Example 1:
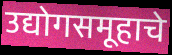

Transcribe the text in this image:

उद्योगसमूहाचे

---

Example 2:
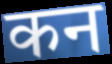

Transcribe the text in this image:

कन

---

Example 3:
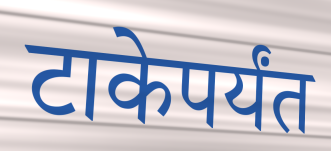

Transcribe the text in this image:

टाकेपर्यंत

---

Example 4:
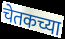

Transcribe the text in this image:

चेतकच्या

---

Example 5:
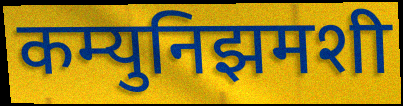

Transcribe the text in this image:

कम्युनिझमशी